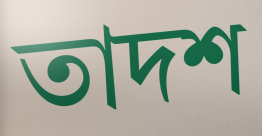
তাদশ